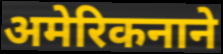
अमेरिकनाने